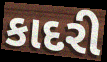
કાદરી